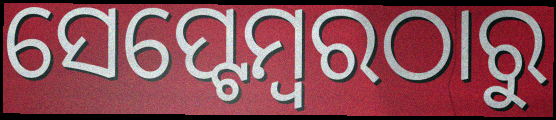
ସେପ୍ଟେମ୍ବରଠାରୁ